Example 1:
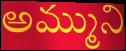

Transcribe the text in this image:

అమ్ముని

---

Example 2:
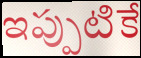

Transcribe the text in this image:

ఇప్పుటికే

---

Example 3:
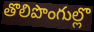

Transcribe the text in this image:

తొలిపొంగుల్లొ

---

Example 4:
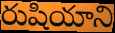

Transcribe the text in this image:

రుషియాని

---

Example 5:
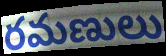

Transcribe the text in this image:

రమణులు